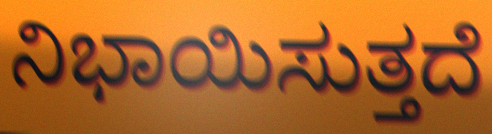
ನಿಭಾಯಿಸುತ್ತದೆ